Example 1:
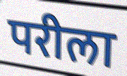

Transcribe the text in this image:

परीला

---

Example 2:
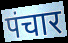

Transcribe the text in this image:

पंचार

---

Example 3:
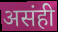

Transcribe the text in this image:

असंही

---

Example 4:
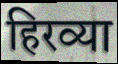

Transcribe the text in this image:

हिरव्या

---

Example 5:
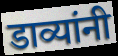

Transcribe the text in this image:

डाव्यांनी